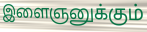
இளைஞனுக்கும்